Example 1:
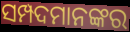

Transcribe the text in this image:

ସମ୍ପଦମାନଙ୍କର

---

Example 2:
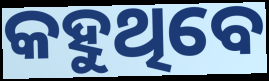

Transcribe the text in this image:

କହୁଥିବେ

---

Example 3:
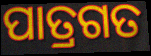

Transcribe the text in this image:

ପାତ୍ରଗତ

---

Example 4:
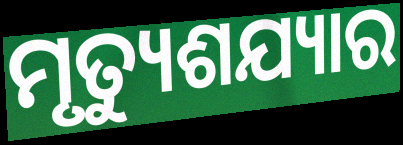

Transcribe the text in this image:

ମୃତ୍ୟୁଶଯ୍ୟାର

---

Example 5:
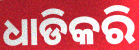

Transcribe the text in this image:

ଧାଡିକରି